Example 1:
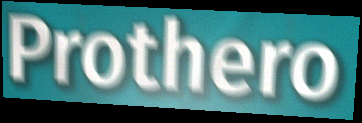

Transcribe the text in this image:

Prothero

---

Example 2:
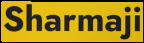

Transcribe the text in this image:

Sharmaji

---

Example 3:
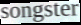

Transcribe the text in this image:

songster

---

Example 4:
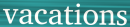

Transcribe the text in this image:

vacations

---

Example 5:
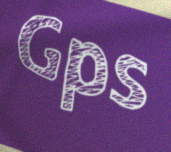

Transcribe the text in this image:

Gps